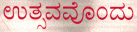
ಉತ್ಸವವೊಂದು